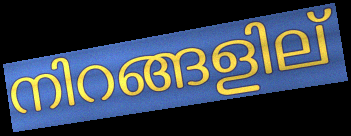
നിറങ്ങളില്